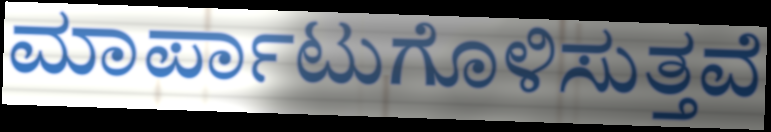
ಮಾರ್ಪಾಟುಗೊಳಿಸುತ್ತವೆ